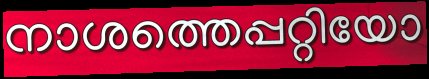
നാശത്തെപ്പറ്റിയോ